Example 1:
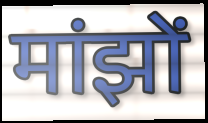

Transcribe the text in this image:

मांझों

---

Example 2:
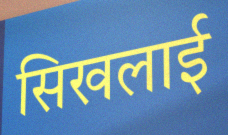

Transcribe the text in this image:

सिखलाई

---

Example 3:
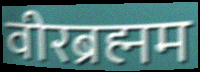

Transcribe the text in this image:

वीरब्रह्मम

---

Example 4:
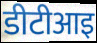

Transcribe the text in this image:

डीटीआइ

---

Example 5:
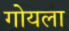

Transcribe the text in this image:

गोयला